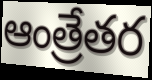
ఆంత్రేతర